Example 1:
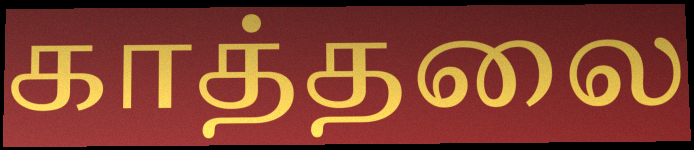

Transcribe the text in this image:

காத்தலை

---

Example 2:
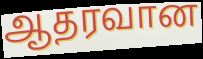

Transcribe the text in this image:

ஆதரவான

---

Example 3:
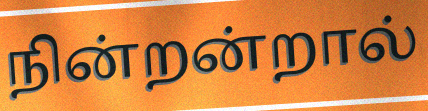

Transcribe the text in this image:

நின்றன்றால்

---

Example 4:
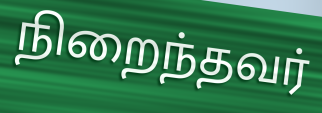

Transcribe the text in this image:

நிறைந்தவர்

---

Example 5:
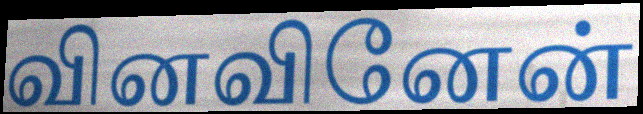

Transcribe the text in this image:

வினவினேன்